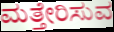
ಮತ್ತೇರಿಸುವ